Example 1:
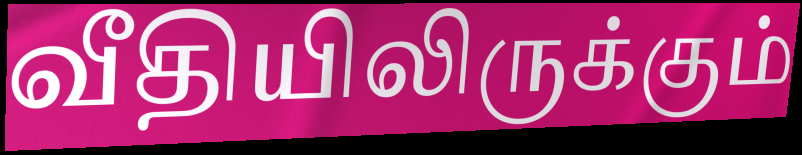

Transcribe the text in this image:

வீதியிலிருக்கும்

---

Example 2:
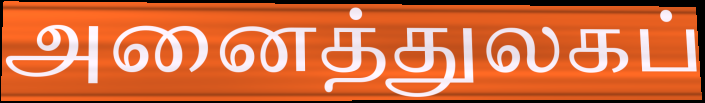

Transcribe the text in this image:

அனைத்துலகப்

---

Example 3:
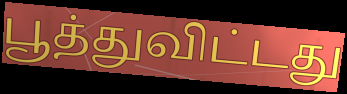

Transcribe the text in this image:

பூத்துவிட்டது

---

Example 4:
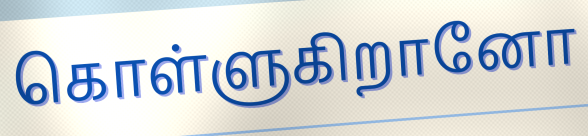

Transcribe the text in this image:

கொள்ளுகிறானோ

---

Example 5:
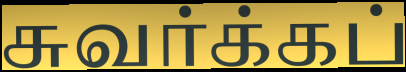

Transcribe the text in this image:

சுவர்க்கப்